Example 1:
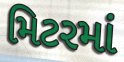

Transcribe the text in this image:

મિટરમાં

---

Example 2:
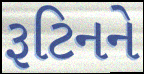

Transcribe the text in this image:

રૂટિનને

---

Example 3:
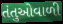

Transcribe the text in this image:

તંતુઓવાળી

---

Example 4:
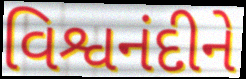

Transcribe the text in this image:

વિશ્વનંદીને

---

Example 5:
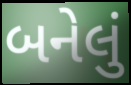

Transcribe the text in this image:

બનેલું